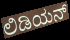
ಲಿಡಿಯನ್